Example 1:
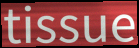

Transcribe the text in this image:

tissue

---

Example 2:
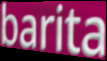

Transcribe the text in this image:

barita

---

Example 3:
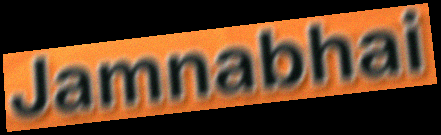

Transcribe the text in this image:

Jamnabhai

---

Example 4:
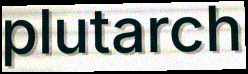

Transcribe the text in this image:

plutarch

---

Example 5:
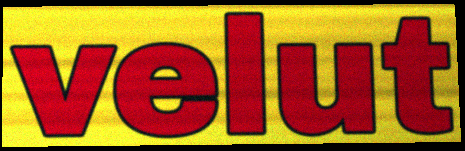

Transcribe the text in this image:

velut